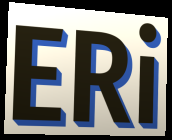
ERi